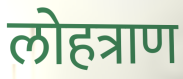
लोहत्राण